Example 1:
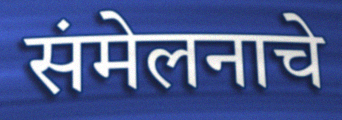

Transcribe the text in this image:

संमेलनाचे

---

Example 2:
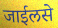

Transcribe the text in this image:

जाईलसे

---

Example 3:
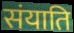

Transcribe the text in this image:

संयाति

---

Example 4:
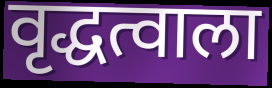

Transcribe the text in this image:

वृद्धत्वाला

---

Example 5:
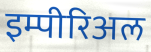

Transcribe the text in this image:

इम्पीरिअल